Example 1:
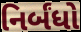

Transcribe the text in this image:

નિર્બંધો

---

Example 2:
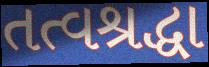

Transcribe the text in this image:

તત્વશ્રદ્ધા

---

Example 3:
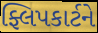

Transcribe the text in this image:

ફ્લિપકાર્ટને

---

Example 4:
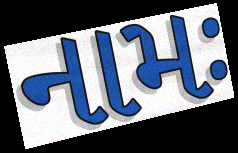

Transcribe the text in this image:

નામઃ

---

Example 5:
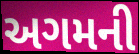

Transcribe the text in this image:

અગમની